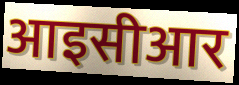
आइसीआर